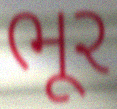
ભૂર